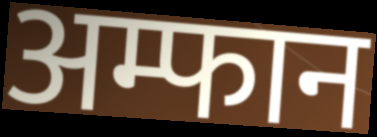
अम्फान